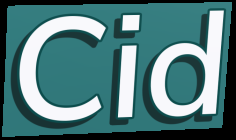
Cid